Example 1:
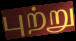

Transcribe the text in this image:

புற்று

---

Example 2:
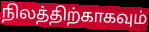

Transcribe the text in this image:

நிலத்திற்காகவும்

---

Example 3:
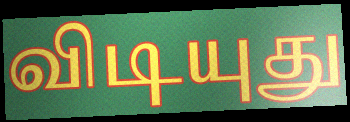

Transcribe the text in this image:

விடியுது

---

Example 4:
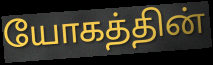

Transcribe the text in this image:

யோகத்தின்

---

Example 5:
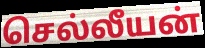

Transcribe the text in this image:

செல்லீயன்